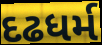
દઢધર્મ